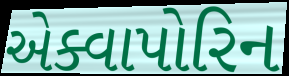
એક્વાપોરિન